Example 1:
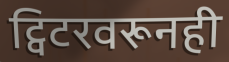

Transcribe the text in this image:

ट्विटरवरूनही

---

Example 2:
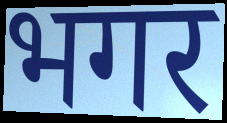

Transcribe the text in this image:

भगर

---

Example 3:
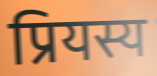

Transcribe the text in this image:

प्रियस्य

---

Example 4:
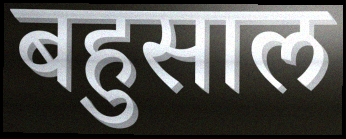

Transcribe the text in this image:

बहुसाल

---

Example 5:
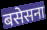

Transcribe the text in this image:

बसेसना